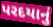
પરદયાનું